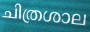
ചിത്രശാല